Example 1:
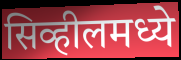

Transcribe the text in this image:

सिव्हीलमध्ये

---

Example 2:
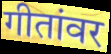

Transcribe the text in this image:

गीतांवर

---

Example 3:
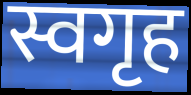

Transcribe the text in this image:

स्वगृह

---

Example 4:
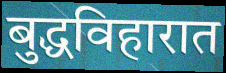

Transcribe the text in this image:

बुद्धविहारात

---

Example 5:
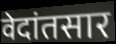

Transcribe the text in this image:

वेदांतसार